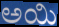
ಅಯಿ